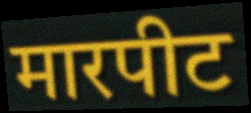
मारपीट